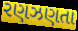
રણઝણતા